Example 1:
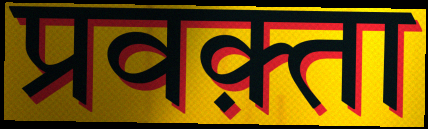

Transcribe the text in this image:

प्रवक़्ता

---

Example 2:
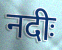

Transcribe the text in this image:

नदीः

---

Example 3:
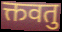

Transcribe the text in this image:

क्तवतु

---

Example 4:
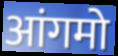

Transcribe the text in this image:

आंगमो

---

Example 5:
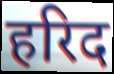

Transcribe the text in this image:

हरिद